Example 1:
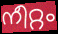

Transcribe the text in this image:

നീറ്റം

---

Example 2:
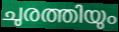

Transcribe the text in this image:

ചുരത്തിയും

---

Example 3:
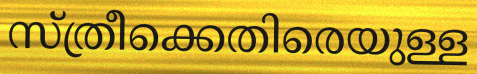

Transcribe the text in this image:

സ്ത്രീക്കെതിരെയുള്ള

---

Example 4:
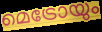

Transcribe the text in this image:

മെട്രോയും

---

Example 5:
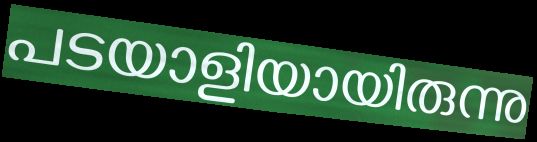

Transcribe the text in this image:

പടയാളിയായിരുന്നു